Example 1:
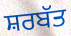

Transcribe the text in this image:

ਸ਼ਰਬੱਤ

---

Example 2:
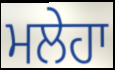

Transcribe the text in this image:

ਮਲੇਹਾ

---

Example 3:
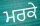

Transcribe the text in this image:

ਮਰਕੇ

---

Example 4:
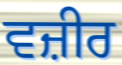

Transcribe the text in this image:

ਵਜ਼ੀਰ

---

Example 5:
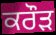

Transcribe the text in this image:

ਕਰੌੜ